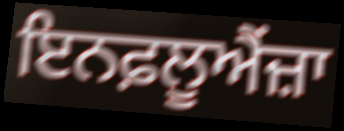
ਇਨਫ਼ਲੂਐਂਜ਼ਾ